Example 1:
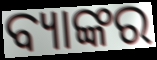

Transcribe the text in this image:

ବ୍ୟାଙ୍କର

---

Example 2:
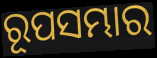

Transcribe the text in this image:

ରୂପସମ୍ଭାର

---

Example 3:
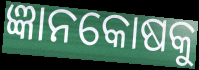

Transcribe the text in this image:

ଜ୍ଞାନକୋଷକୁ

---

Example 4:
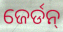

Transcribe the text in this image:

ଜେର୍ଡନ୍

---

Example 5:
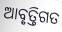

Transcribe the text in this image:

ଆବୃତ୍ତିଗତ